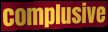
complusive